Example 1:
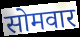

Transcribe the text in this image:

सोमवार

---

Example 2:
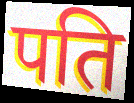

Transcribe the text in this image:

पति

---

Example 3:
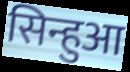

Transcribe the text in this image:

सिन्हुआ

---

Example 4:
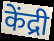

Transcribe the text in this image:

केंद्री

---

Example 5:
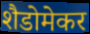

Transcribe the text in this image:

शैडोमेकर